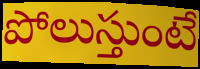
పోలుస్తుంటే